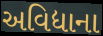
અવિદ્યાના